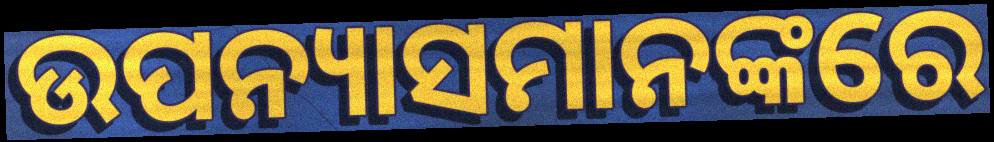
ଉପନ୍ୟାସମାନଙ୍କରେ